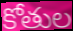
కోతుల